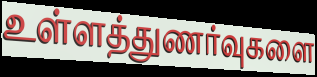
உள்ளத்துணர்வுகளை